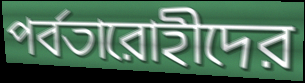
পর্বতারোহীদের